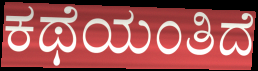
ಕಥೆಯಂತಿದೆ